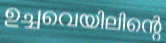
ഉച്ചവെയിലിന്റെ